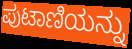
ಪುಟಾಣಿಯನ್ನು